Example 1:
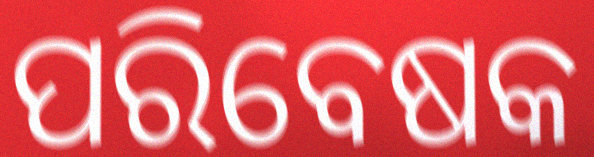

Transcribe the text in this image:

ପରିବେଷକ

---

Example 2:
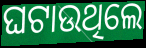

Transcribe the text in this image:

ଘଟାଉଥିଲେ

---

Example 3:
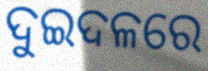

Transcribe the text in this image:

ଦୁଇଦଳରେ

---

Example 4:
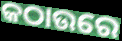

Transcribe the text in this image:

କଠାଉରେ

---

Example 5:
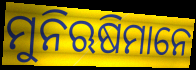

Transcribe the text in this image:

ମୁନିଋଷିମାନେ